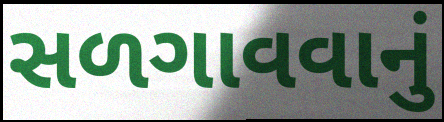
સળગાવવાનું